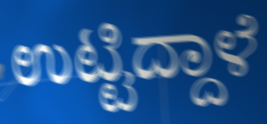
ಉಟ್ಟಿದ್ದಾಳೆ